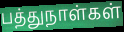
பத்துநாள்கள்